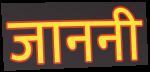
जाननी